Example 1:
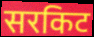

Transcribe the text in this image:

सरकिट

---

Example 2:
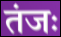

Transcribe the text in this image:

तंजः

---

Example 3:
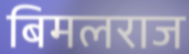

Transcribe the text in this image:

बिमलराज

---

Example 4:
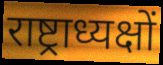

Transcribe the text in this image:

राष्ट्राध्यक्षों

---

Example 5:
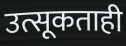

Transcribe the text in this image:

उत्सूकताही